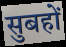
सुबहों